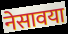
नेसावया